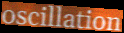
oscillation